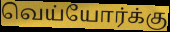
வெய்யோர்க்கு